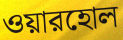
ওয়ারহোল